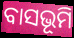
ବାସଭୂମି